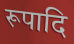
रूपादि